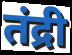
तंद्री